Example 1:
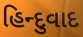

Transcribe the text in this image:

હિન્દુવાદ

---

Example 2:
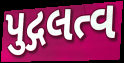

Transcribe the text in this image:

પુદ્ગલત્વ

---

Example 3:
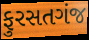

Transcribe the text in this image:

ફુરસતગંજ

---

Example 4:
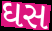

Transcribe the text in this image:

ઘસ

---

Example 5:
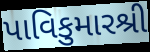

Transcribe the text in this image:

પાવિકુમારશ્રી